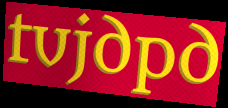
tujdpd